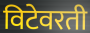
विटेवरती